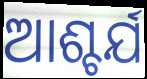
ଆଶ୍ଚର୍ଯ